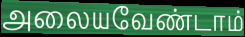
அலையவேண்டாம்